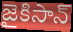
జైకిసాన్